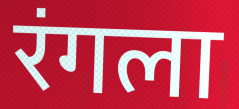
रंगला